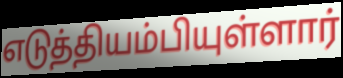
எடுத்தியம்பியுள்ளார்